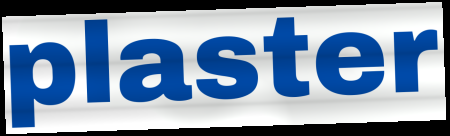
plaster